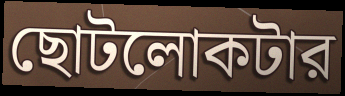
ছোটলোকটার